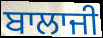
ਬਾਲਾਜੀ